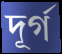
দূৰ্গ